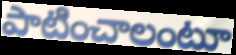
పాటించాలంటూ